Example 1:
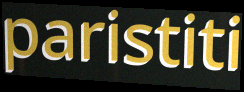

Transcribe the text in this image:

paristiti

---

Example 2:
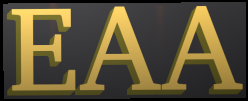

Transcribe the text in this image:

EAA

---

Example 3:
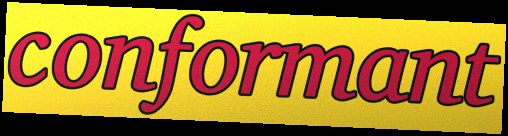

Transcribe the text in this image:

conformant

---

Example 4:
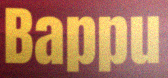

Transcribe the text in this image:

Bappu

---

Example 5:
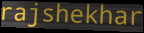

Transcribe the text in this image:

rajshekhar